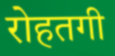
रोहतगी